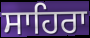
ਸਾਹਿਰਾ